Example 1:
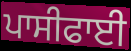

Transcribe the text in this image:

ਪਾਸੀਫਾਈ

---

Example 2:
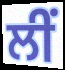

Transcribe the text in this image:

ਲੀਂ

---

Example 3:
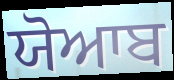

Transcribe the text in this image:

ਯੋਆਬ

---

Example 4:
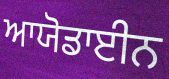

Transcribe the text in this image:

ਆਯੋਡਾਈਨ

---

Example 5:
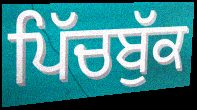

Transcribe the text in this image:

ਪਿੱਚਬੁੱਕ